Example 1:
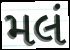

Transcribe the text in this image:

મલં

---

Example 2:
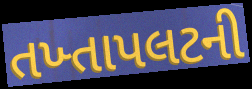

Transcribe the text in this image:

તખ્તાપલટની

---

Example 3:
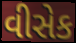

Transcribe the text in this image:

વીસેક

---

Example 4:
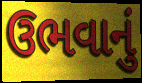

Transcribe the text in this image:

ઉભવાનું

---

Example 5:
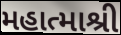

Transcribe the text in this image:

મહાત્માશ્રી